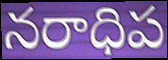
నరాధిప